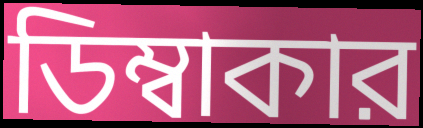
ডিম্বাকার